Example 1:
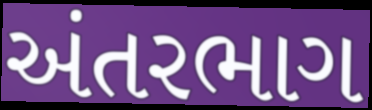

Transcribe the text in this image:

અંતરભાગ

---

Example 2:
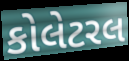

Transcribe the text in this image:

કોલેટરલ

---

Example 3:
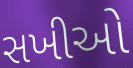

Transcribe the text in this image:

સખીઓ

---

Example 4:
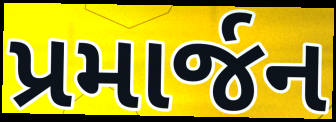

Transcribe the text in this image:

પ્રમાર્જન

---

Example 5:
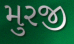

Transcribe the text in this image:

મુરજી